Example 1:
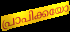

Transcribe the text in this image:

പ്രാപിക്കയോ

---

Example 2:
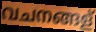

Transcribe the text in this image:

വചനങ്ങള്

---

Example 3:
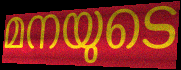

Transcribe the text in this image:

മനയുടെ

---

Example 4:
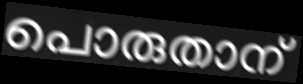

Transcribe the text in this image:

പൊരുതാന്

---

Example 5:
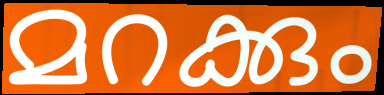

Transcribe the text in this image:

മറക്കും